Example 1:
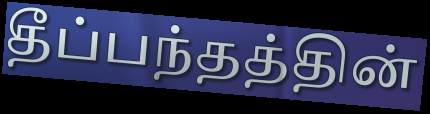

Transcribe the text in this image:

தீப்பந்தத்தின்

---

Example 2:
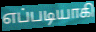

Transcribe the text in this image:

எப்படியாகி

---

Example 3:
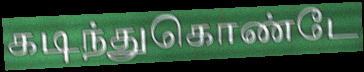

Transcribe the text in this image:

கடிந்துகொண்டே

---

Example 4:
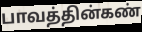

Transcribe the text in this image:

பாவத்தின்கண்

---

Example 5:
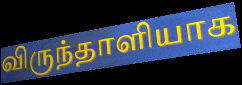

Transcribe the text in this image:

விருந்தாளியாக